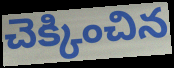
చెక్కించిన